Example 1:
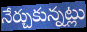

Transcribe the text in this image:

నేర్చుకున్నట్లు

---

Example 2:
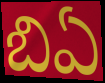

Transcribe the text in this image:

బిఏ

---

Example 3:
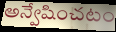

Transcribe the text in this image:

అన్వేషించటం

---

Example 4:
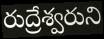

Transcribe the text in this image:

రుద్రేశ్వరుని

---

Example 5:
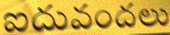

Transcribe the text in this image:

ఐదువందలు